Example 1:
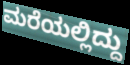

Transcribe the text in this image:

ಮರೆಯಲ್ಲಿದ್ದು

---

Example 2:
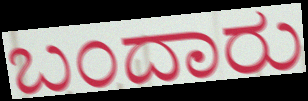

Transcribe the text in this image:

ಬಂದಾರು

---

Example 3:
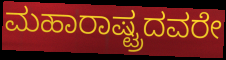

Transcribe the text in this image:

ಮಹಾರಾಷ್ಟ್ರದವರೇ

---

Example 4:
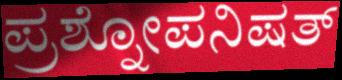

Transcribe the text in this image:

ಪ್ರಶ್ನೋಪನಿಷತ್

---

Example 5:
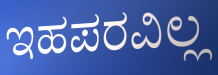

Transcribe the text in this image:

ಇಹಪರವಿಲ್ಲ